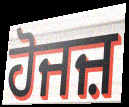
ਹੋਜਜ਼